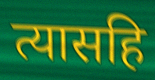
त्यासहि